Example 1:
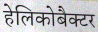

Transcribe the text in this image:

हेलिकोबैक्टर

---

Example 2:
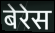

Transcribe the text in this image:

बेरेस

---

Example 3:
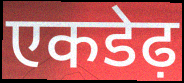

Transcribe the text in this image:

एकडेढ़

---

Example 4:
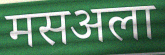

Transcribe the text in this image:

मसअला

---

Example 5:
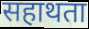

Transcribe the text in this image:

सहाथता